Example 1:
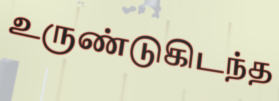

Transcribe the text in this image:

உருண்டுகிடந்த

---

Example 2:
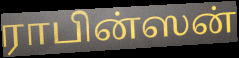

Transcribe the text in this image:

ராபின்ஸன்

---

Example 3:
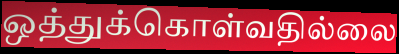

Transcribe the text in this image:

ஒத்துக்கொள்வதில்லை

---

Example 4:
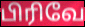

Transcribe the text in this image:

பிரிவே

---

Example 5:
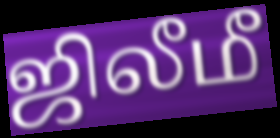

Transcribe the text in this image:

ஜிலீமீ